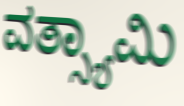
ವತ್ಸ್ಯಾಮಿ